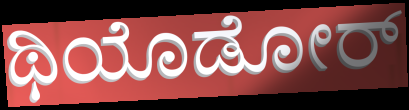
ಥಿಯೊಡೋರ್